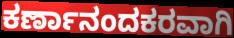
ಕರ್ಣಾನಂದಕರವಾಗಿ